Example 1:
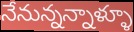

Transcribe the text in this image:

నేనున్నన్నాళ్ళూ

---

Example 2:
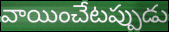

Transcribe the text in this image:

వాయించేటప్పుడు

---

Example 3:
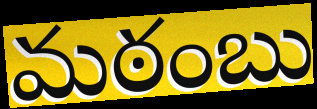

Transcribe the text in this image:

మఠంబు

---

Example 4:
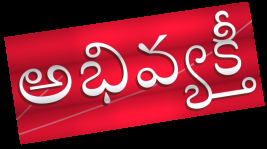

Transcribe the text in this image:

అభివ్యక్తీ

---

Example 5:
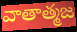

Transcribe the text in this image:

వాతాత్మజ